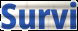
Survi